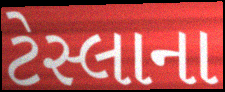
ટેસ્લાના